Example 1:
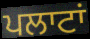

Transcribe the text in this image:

ਪਲਾਟਾਂ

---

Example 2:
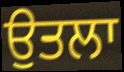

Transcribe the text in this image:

ਉਤਲਾ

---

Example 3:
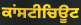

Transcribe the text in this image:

ਕਾਂਸਟੀਚਿਊਟ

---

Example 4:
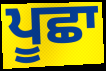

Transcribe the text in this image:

ਪੂਛਾ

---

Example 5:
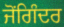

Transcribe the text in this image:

ਜੋਂਗਿੰਦਰ